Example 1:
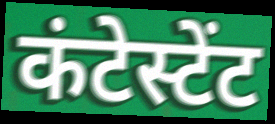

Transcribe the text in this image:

कंटेस्टेंट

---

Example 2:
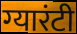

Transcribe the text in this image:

ग्‍यारंटी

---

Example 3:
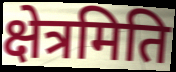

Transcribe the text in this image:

क्षेत्रमिति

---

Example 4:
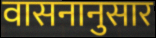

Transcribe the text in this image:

वासनानुसार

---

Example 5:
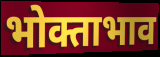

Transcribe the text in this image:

भोक्ताभाव